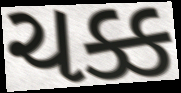
ચક્ક